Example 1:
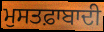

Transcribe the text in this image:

ਮੁਸਤਫ਼ਾਬਾਦੀ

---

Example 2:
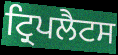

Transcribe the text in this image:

ਟ੍ਰਿਪਲੈਟਸ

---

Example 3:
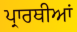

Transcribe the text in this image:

ਪ੍ਰਾਰਥੀਆਂ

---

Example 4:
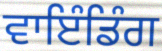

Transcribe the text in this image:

ਵਾਇੰਡਿੰਗ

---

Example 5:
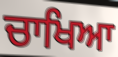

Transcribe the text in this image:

ਚਾਖਿਆ